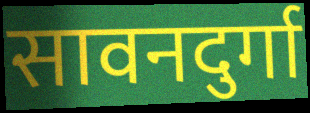
सावनदुर्गा